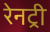
रेनट्री